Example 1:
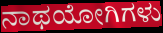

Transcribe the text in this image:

ನಾಥಯೋಗಿಗಳು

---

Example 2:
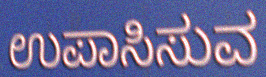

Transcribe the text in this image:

ಉಪಾಸಿಸುವ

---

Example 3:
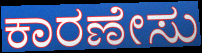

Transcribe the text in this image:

ಕಾರಣೇಸು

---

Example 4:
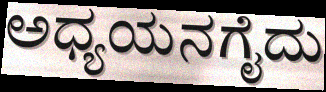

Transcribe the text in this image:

ಅಧ್ಯಯನಗೈದು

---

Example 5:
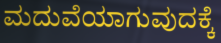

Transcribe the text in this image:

ಮದುವೆಯಾಗುವುದಕ್ಕೆ